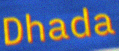
Dhada